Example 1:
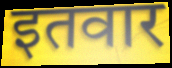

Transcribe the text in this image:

इतवार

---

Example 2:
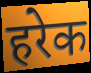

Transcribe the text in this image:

हरेक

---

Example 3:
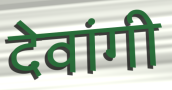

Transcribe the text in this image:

देवांगी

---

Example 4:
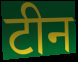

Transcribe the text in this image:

टीन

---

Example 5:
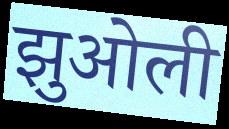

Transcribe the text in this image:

झुओली